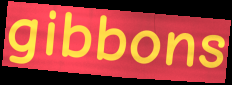
gibbons